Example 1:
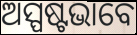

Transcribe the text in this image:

ଅସ୍ପଷ୍ଟଭାବେ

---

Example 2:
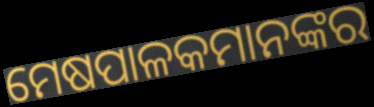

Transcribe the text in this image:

ମେଷପାଳକମାନଙ୍କର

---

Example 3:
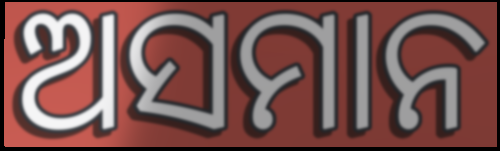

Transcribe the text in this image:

ଅସମାନ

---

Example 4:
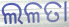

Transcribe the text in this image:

ଲଳତା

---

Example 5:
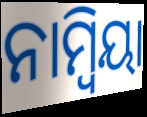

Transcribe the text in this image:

ନାମ୍ୱିୟା